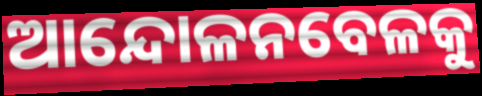
ଆନ୍ଦୋଳନବେଳକୁ